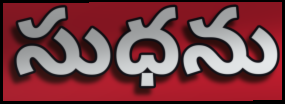
సుధను